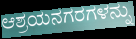
ಆಶ್ರಯನಗರಗಳನ್ನು